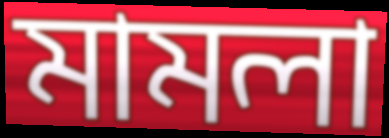
মামলা